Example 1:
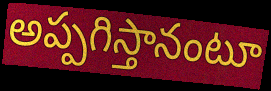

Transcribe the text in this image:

అప్పగిస్తానంటూ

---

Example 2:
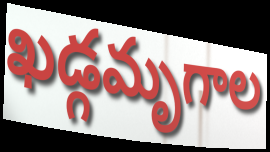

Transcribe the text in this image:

ఖడ్గమృగాల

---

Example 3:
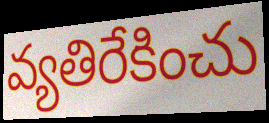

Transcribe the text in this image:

వ్యతిరేకించు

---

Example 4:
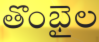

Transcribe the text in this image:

తొంభైల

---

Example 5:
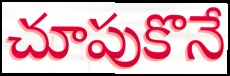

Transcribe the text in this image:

చూపుకొనే